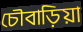
চৌবাড়িয়া